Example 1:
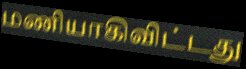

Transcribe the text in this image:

மணியாகிவிட்டது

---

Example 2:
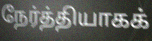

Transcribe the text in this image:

நேர்த்தியாகக்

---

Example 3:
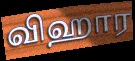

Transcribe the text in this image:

விஹார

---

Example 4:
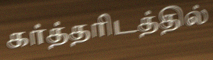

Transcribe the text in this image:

கர்த்தரிடத்தில்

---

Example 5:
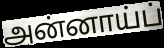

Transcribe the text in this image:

அன்னாய்ப்